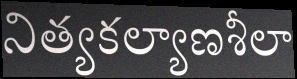
నిత్యకల్యాణశీలా